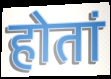
होतां